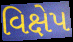
વિક્ષેપ